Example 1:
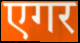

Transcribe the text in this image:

एगर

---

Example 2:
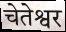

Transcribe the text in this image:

चेतेश्वर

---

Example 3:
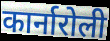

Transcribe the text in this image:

कार्नारोली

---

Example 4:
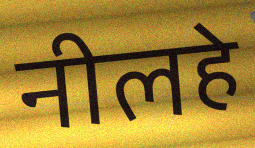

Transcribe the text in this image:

नीलहे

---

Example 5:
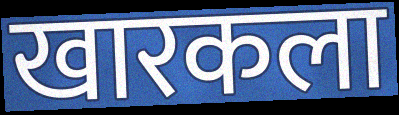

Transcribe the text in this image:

खारकला